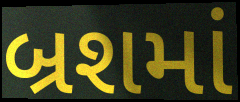
બ્રશમાં